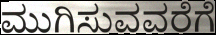
ಮುಗಿಸುವವರೆಗೆ